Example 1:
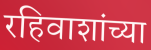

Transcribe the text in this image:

रहिवाशांच्या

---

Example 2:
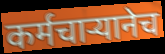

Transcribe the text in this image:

कर्मचाऱ्यानेच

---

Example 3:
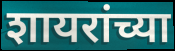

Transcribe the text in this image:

शायरांच्या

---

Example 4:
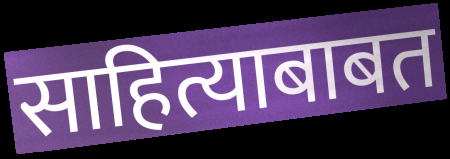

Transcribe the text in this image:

साहित्याबाबत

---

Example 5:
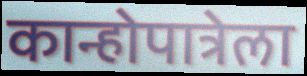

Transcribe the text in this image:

कान्होपात्रेला